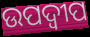
ଉପଦ୍ବୀପ